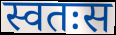
स्वतःस